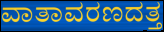
ವಾತಾವರಣದತ್ತ